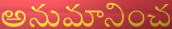
అనుమానించ